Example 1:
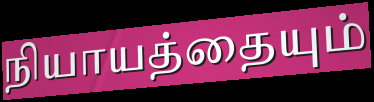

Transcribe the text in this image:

நியாயத்தையும்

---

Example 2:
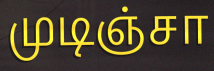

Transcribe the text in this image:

முடிஞ்சா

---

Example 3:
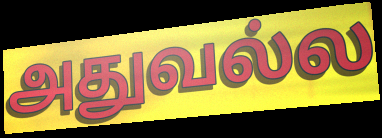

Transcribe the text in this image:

அதுவல்ல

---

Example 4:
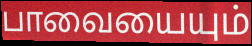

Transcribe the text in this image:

பாவையையும்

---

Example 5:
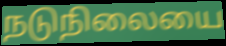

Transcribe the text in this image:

நடுநிலையை